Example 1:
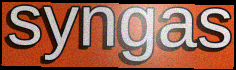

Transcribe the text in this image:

syngas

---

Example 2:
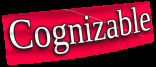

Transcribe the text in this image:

Cognizable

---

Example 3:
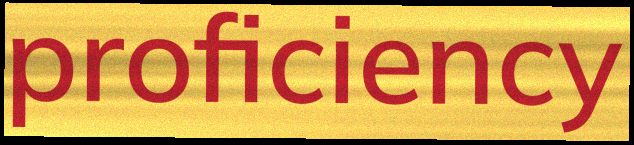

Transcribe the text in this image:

proficiency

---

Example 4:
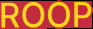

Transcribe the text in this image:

ROOP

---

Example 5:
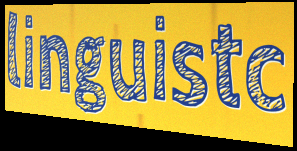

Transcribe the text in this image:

linguistc